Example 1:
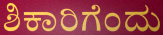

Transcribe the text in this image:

ಶಿಕಾರಿಗೆಂದು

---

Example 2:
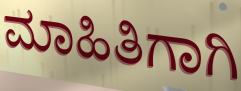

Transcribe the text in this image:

ಮಾಹಿತಿಗಾಗಿ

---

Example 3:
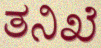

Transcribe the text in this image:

ತನಿಖೆ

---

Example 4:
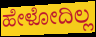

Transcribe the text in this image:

ಹೇಳೋದಿಲ್ಲ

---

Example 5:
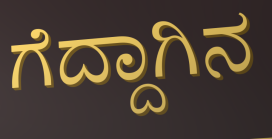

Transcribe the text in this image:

ಗೆದ್ದಾಗಿನ